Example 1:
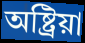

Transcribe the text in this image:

অষ্ট্ৰিয়া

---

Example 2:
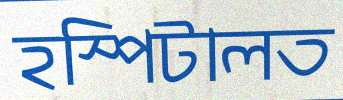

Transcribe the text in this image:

হস্পিটালত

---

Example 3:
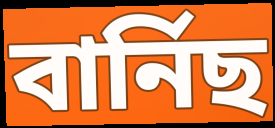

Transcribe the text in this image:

বাৰ্নিছ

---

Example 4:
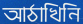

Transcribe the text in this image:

আঠাখিনি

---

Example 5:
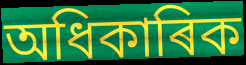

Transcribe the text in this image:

অধিকাৰিক